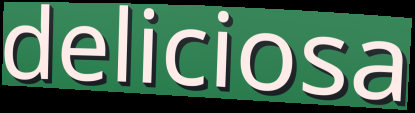
deliciosa